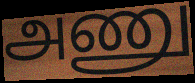
அணு